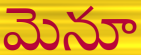
మెనూ